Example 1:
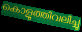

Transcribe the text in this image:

കൊളുത്തിവലിച്ചു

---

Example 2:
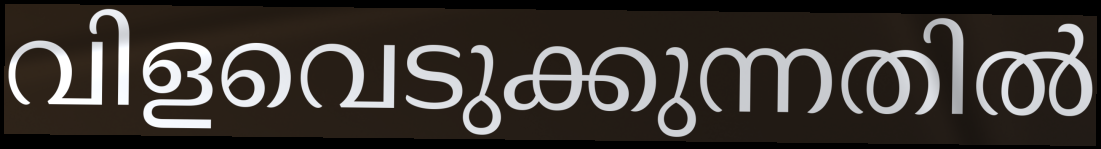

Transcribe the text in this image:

വിളവെടുക്കുന്നതിൽ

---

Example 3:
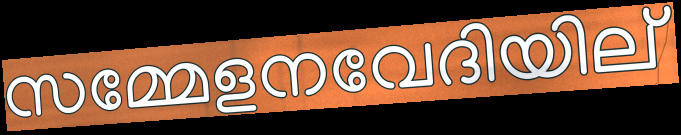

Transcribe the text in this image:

സമ്മേളനവേദിയില്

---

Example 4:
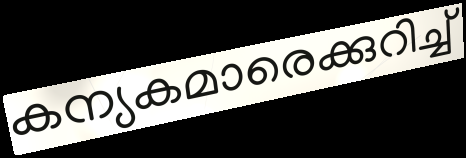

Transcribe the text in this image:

കന്യകമാരെക്കുറിച്ച്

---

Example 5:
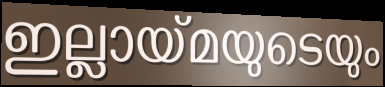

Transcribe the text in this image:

ഇല്ലായ്മയുടെയും